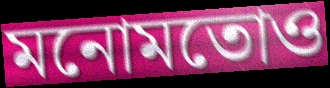
মনোমতোও